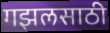
गझलसाठी